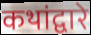
कथांद्वारे